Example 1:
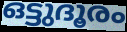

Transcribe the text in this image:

ഒട്ടുദൂരം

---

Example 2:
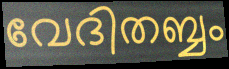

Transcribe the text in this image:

വേദിതബ്ബം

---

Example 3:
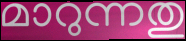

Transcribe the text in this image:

മാറുന്നതു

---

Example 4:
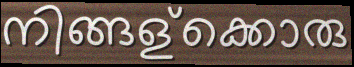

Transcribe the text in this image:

നിങ്ങള്ക്കൊരു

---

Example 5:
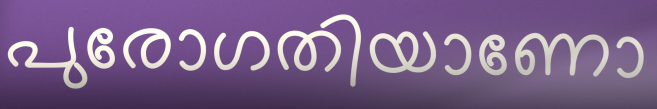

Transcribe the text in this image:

പുരോഗതിയാണോ